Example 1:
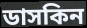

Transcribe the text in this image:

ডাসকিন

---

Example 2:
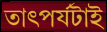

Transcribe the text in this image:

তাৎপর্যটাই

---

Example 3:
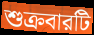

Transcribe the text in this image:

শুক্রবারটি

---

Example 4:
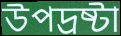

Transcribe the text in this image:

উপদ্রষ্টা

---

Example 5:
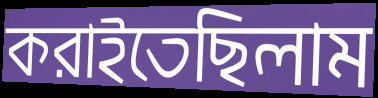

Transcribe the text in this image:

করাইতেছিলাম